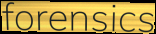
forensics